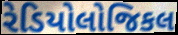
રેડિયોલોજિકલ